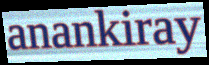
anankiray